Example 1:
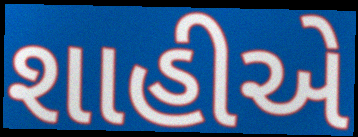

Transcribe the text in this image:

શાહીએ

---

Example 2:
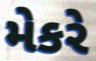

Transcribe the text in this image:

મેકરે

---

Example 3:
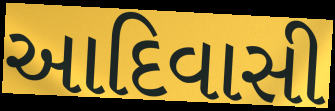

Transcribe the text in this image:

આદિવાસી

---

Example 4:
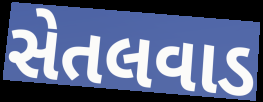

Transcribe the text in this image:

સેતલવાડ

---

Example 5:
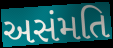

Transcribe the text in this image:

અસંમતિ